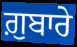
ਗ਼ੁਬਾਰੇ